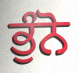
ਭੁੰਨੋ